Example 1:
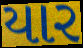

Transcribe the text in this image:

યાર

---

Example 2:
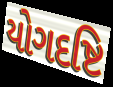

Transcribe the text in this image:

યોગદષ્ટિ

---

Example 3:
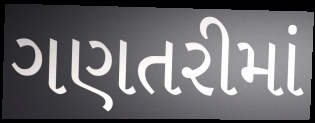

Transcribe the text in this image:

ગણતરીમાં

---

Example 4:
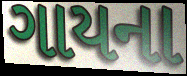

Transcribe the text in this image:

ગાયના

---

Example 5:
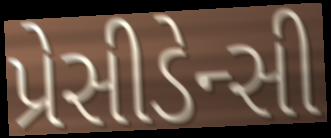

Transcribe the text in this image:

પ્રેસીડેન્સી